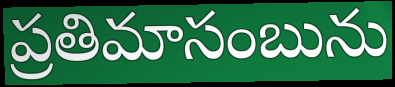
ప్రతిమాసంబును